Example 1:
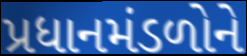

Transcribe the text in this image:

પ્રધાનમંડળોને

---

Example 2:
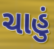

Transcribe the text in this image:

ચાહું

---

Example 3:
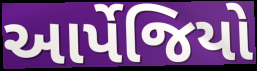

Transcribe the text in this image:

આર્પેજિયો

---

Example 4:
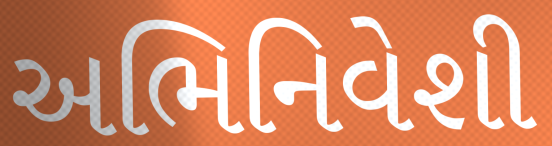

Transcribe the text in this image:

અભિનિવેશી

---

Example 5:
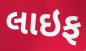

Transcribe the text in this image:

લાઇફ